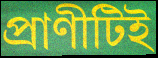
প্রাণীটিই